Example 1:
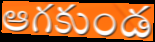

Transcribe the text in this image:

ఆగకుండ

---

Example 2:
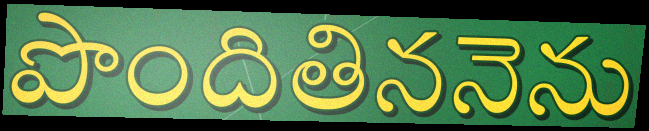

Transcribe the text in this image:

పొందితిననెను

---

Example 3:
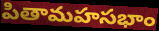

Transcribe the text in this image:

పితామహసభాం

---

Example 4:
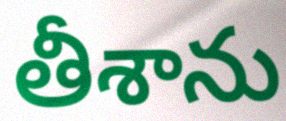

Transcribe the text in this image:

తీశాను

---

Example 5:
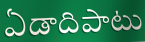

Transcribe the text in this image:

ఏడాదిపాటు